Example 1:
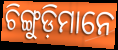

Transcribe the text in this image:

ଚିଙ୍ଗୁଡ଼ିମାନେ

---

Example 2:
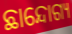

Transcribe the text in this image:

ଛାନ୍ଦୋଗ୍ୟ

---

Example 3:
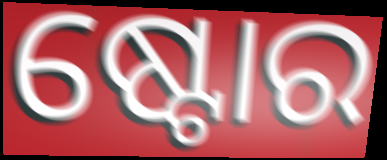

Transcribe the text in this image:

ଷ୍ଟୋର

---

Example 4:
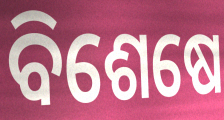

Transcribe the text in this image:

ବିଶେଷେ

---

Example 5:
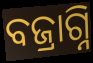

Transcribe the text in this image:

ବଜ୍ରାଗ୍ନି